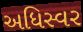
અધિસ્વર